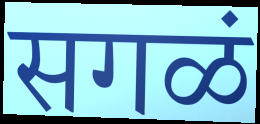
सगळं